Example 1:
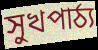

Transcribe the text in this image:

সুখপাঠ্য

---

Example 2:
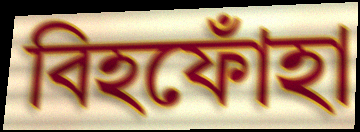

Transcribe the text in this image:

বিহফোঁহা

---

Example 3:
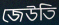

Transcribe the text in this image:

জেউতি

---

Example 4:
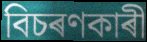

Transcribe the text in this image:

বিচৰণকাৰী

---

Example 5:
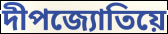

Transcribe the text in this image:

দীপজ্যোতিয়ে